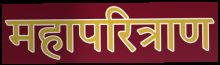
महापरित्राण